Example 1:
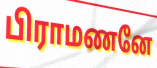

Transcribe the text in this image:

பிராமணனே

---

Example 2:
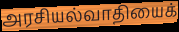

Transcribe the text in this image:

அரசியல்வாதியைக்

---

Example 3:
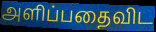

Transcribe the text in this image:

அளிப்பதைவிட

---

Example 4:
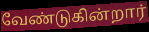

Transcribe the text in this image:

வேண்டுகின்றார்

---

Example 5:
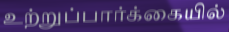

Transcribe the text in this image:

உற்றுப்பார்க்கையில்